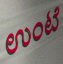
ಉಂಟೆ